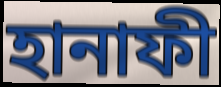
হানাফী